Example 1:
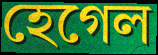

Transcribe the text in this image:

হেগেল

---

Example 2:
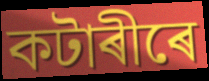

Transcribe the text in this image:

কটাৰীৰে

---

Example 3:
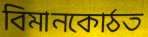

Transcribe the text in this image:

বিমানকোঠত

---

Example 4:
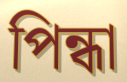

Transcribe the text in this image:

পিন্ধা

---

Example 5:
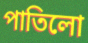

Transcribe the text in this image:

পাতিলো